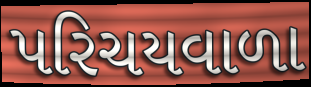
પરિચયવાળા